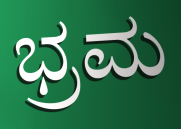
ಭ್ರಮ